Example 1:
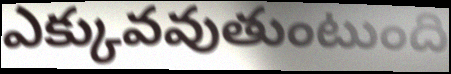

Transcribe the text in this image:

ఎక్కువవుతుంటుంది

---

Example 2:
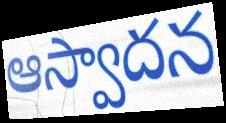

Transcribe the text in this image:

ఆస్వాదన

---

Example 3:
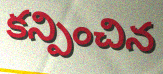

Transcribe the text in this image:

కన్పించిన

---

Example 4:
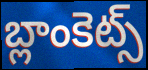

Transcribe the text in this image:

బ్లాంకెట్స్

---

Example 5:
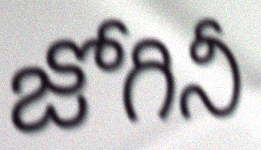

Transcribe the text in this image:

జోగినీ